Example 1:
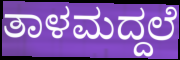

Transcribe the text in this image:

ತಾಳಮದ್ದಲೆ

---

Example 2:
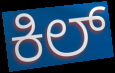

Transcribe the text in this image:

ಕಿಲ್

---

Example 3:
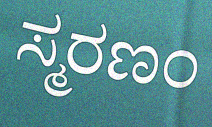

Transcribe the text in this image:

ಸ್ಮರಣಂ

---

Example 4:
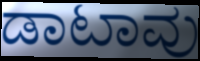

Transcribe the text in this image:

ಡಾಟಾವು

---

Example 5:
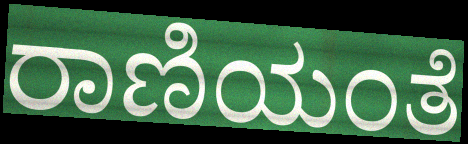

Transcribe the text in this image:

ರಾಣಿಯಂತೆ